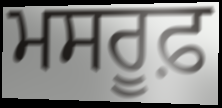
ਮਸਰੂਫ਼